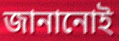
জানানোই